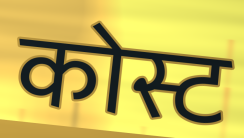
कोस्ट